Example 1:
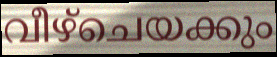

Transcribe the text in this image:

വീഴ്ചെയക്കും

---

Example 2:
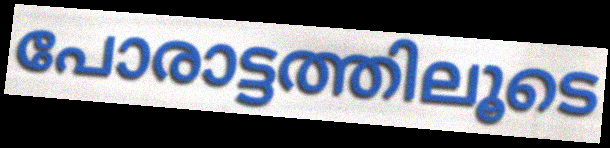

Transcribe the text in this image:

പോരാട്ടത്തിലൂടെ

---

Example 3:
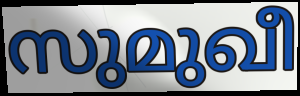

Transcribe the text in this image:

സുമുഖീ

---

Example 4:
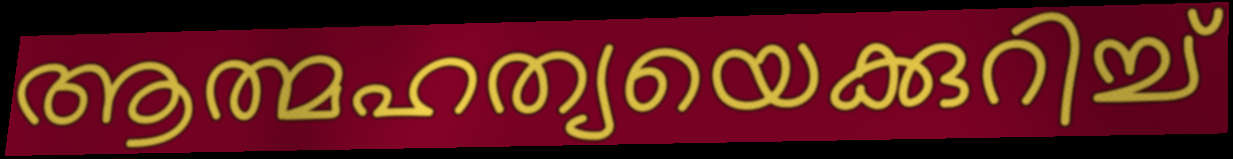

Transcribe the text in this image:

ആത്മഹത്യയെക്കുറിച്ച്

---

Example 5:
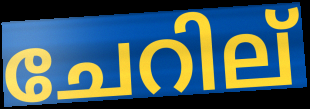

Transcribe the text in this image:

ചേറില്